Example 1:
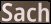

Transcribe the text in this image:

Sach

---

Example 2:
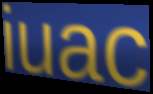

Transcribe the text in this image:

iuac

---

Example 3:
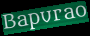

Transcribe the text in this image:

Bapurao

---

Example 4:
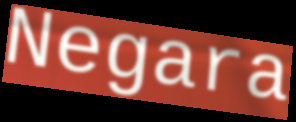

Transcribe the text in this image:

Negara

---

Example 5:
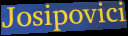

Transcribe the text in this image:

Josipovici